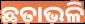
ଛତାଭଳି